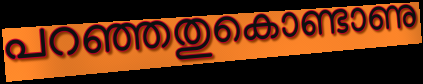
പറഞ്ഞതുകൊണ്ടാണു